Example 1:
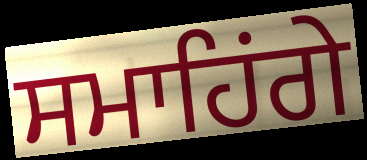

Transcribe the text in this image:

ਸਮਾਹਿਂਗੇ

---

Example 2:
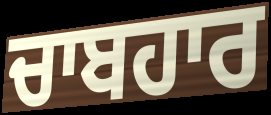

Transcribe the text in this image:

ਚਾਬਹਾਰ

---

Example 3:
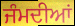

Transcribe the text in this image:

ਜੰਮਦੀਆਂ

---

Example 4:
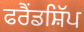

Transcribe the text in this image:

ਫਰੈਂਡਸ਼ਿੱਪ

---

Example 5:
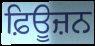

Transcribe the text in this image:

ਫ਼ਿਊਜ਼ਨ